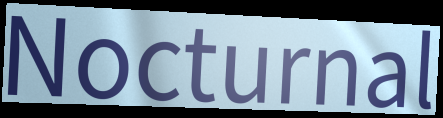
Nocturnal